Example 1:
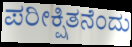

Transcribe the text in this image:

ಪರೀಕ್ಷಿತನೆಂದು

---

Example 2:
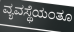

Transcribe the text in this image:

ವ್ಯವಸ್ಥೆಯಂತೂ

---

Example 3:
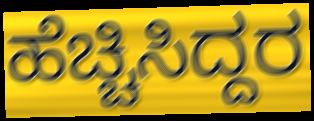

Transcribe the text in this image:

ಹೆಚ್ಚಿಸಿದ್ದರ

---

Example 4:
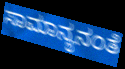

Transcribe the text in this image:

ಸಾಮಾನ್ಯನಂತೆ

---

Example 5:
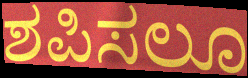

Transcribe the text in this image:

ಶಪಿಸಲೂ